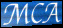
MCA